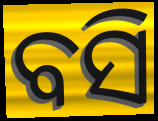
ବସି